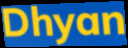
Dhyan